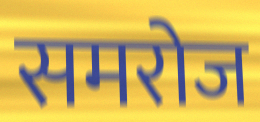
समरोज